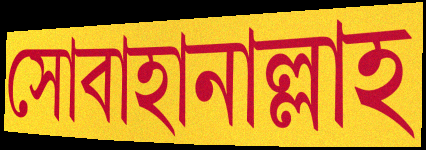
সোবাহানাল্লাহ